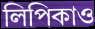
লিপিকাও